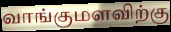
வாங்குமளவிற்கு